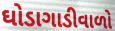
ઘોડાગાડીવાળો